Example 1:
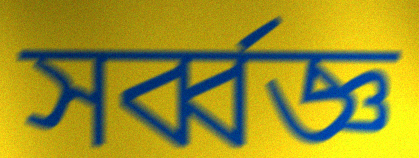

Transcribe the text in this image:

সৰ্ব্বজ্ঞ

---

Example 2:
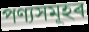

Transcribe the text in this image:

পণ্যসমূহৰ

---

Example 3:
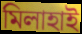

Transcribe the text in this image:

মিলাহাই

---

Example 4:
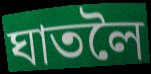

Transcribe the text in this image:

ঘাতলৈ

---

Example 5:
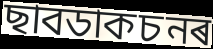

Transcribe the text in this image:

ছাবডাকচনৰ